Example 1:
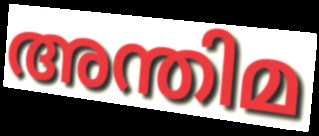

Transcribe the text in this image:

അന്തിമ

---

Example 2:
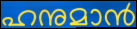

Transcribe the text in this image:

ഹനുമാൻ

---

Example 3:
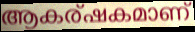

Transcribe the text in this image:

ആകര്ഷകമാണ്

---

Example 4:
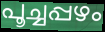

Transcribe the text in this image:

പൂച്ചപ്പഴം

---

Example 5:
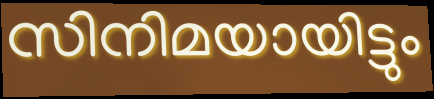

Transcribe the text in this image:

സിനിമയായിട്ടും